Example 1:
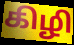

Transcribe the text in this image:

கிழி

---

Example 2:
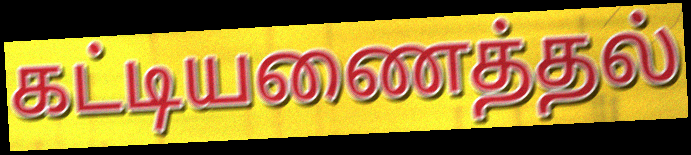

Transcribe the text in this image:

கட்டியணைத்தல்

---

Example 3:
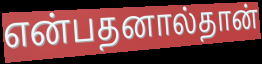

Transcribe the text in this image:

என்பதனால்தான்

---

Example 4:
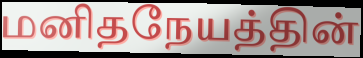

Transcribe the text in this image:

மனிதநேயத்தின்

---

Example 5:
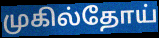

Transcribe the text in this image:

முகில்தோய்